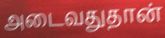
அடைவதுதான்